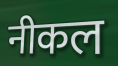
नीकल